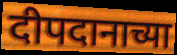
दीपदानाच्या